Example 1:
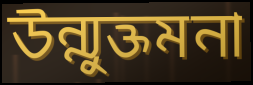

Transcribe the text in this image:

উন্মুক্তমনা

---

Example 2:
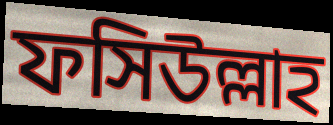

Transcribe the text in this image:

ফসিউল্লাহ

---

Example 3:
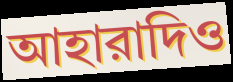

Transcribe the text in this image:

আহারাদিও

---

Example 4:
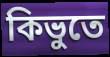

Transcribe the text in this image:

কিভুতে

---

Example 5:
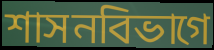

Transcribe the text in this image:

শাসনবিভাগে